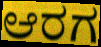
ಆರಗ